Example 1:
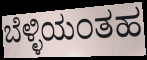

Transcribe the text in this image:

ಬೆಳ್ಳಿಯಂತಹ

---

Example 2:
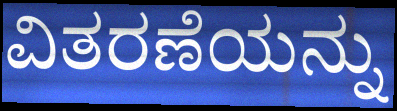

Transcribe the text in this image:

ವಿತರಣೆಯನ್ನು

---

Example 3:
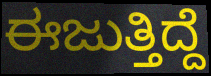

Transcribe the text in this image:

ಈಜುತ್ತಿದ್ದೆ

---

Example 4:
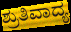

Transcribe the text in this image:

ಶ್ರುತಿವಾದ್ಯ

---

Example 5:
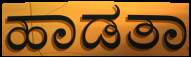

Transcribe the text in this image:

ಹಾಡತಾ